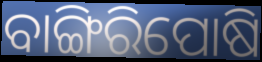
ବାଙ୍ଗିରିପୋଷି